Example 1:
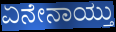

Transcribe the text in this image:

ಏನೇನಾಯ್ತು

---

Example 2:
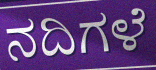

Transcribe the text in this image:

ನದಿಗಳೆ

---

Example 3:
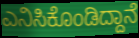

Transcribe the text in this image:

ಎನಿಸಿಕೊಂಡಿದ್ದಾನೆ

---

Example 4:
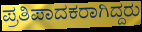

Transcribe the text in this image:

ಪ್ರತಿಪಾದಕರಾಗಿದ್ದರು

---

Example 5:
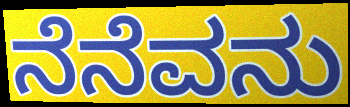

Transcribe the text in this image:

ನೆನೆವನು